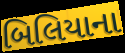
બિલિયાના